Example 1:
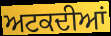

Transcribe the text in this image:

ਅਟਕਦੀਆਂ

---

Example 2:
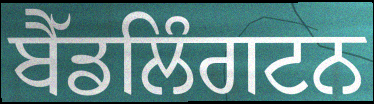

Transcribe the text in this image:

ਬੈੱਡਲਿੰਗਟਨ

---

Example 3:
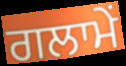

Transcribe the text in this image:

ਗਲਾਮੇਂ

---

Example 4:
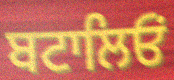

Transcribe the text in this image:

ਬਟਾਲਿਓਂ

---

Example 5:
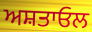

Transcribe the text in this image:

ਅਸ਼ਤਾਓਲ